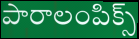
పారాలంపిక్స్